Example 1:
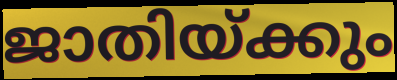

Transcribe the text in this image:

ജാതിയ്ക്കും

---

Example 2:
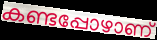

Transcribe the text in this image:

കണ്ടപ്പോഴാണ്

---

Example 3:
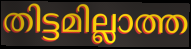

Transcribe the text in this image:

തിട്ടമില്ലാത്ത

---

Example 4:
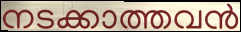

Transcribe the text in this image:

നടക്കാത്തവൻ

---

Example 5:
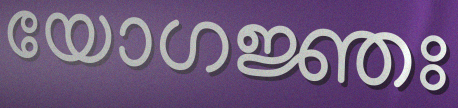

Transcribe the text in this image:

യോഗജ്ഞഃ